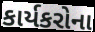
કાર્યકરોના